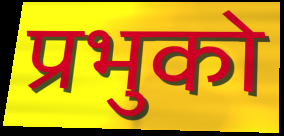
प्रभुको